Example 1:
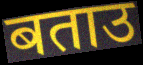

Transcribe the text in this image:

बताउ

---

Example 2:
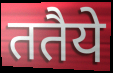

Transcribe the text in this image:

ततैये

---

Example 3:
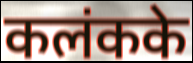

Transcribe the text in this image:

कलंकके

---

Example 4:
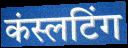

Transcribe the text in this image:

कंस्लटिंग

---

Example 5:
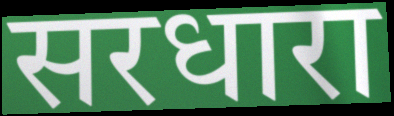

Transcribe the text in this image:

सरधारा